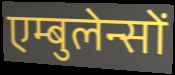
एम्बुलेन्सों